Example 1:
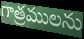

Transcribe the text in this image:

గాత్రములను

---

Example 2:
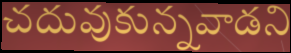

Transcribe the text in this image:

చదువుకున్నవాడని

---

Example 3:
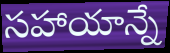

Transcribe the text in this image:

సహాయాన్నే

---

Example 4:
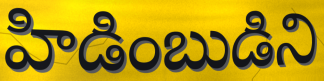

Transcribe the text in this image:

హిడింబుడిని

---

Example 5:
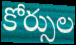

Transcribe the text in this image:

కోర్సుల